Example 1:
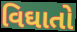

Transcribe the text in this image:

વિઘાતો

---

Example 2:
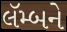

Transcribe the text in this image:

લૅમ્બને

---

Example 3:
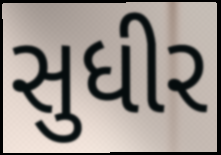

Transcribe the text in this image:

સુધીર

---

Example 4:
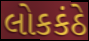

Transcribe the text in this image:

લોકકંઠે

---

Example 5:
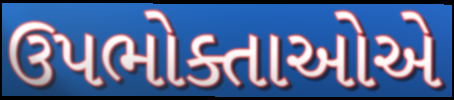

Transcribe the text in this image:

ઉપભોક્તાઓએ